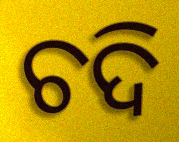
ଚଦି